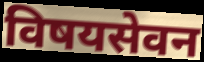
विषयसेवन